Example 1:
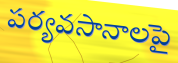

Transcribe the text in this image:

పర్యవసానాలపై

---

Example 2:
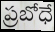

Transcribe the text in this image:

ప్రబోధే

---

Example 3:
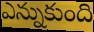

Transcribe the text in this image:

ఎన్నుకుంది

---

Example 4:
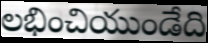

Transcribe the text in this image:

లభించియుండేది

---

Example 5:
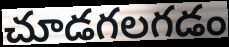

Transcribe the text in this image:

చూడగలగడం